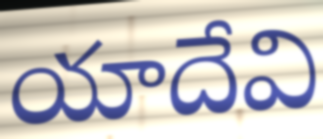
యాదేవి